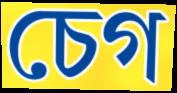
চেগ